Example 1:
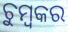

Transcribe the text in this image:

ଚୁମ୍ବକର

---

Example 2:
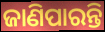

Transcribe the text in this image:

ଜାଣିପାରନ୍ତି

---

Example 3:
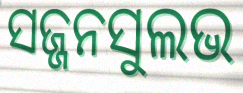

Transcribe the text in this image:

ସଜ୍ଜନସୁଲଭ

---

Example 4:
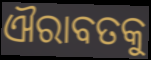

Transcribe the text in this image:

ଐରାବତକୁ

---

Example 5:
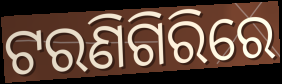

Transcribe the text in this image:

ଟରଣିଗିରିରେ